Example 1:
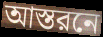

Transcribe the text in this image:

আস্তরনে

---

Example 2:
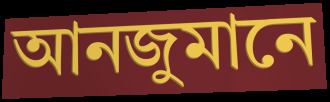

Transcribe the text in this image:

আনজুমানে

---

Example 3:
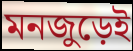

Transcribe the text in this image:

মনজুড়েই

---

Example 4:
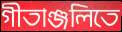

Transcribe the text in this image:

গীতাঞ্জলিতে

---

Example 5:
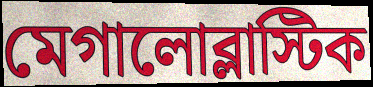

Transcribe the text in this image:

মেগালোব্লাস্টিক